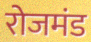
रोजमंड